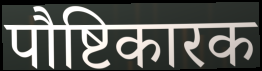
पौष्टिकारक